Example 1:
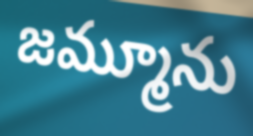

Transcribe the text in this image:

జమ్మూను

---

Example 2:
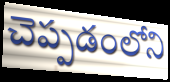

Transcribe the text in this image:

చెప్పడంలోని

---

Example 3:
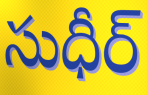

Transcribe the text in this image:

సుధీర్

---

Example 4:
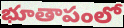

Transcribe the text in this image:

భూతాపంలో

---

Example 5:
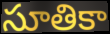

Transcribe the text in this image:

సూతికా